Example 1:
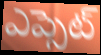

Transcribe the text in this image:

ఎప్సెట్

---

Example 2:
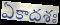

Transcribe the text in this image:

ఏకాదశః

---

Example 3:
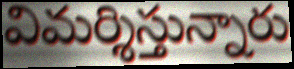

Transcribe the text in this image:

విమర్శిస్తున్నారు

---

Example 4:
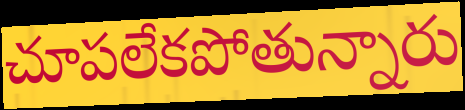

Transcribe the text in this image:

చూపలేకపోతున్నారు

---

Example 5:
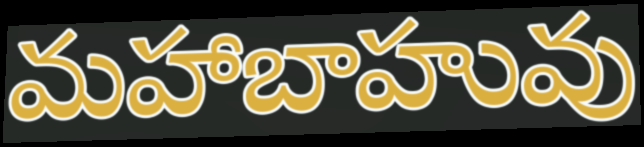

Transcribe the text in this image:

మహాబాహువు